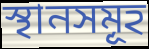
স্থানসমূহ